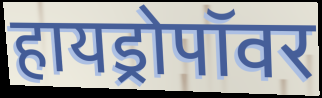
हायड्रोपॉवर